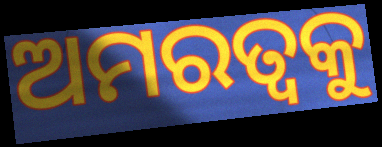
ଅମରତ୍ୱକୁ